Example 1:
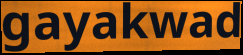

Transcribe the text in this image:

gayakwad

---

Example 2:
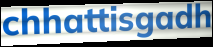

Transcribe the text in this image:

chhattisgadh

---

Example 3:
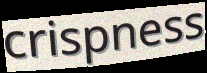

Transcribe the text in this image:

crispness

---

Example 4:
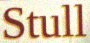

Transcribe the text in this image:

Stull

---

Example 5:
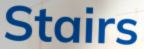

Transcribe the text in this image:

Stairs